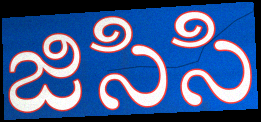
జిసిసి